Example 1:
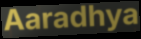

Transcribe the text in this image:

Aaradhya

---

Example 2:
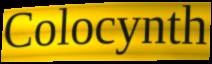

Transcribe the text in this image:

Colocynth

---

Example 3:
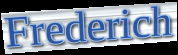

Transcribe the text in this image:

Frederich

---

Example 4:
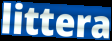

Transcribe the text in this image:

littera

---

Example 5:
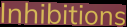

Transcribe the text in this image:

Inhibitions